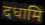
दधामि